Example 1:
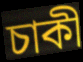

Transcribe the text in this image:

চাকী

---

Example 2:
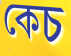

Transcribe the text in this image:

কেচ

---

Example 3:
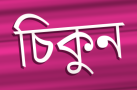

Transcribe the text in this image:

চিকুন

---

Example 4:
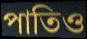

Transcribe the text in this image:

পাতিও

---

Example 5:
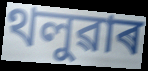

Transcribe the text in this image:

থলুৱাৰ